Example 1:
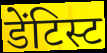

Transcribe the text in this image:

डेंटिस्ट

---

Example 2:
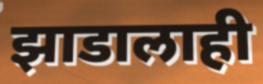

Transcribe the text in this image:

झाडालाही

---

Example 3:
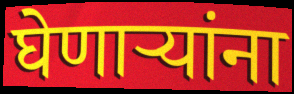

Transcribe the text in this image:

घेणाऱ्यांना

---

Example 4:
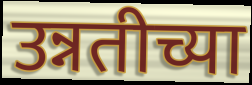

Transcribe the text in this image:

उन्नतीच्या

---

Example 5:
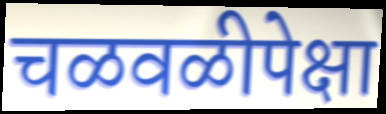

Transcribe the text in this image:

चळवळीपेक्षा